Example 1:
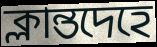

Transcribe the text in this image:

ক্লান্তদেহে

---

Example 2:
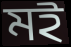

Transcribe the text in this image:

মই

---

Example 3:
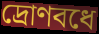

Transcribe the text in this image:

দ্রোণবধে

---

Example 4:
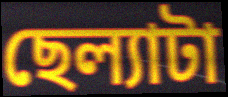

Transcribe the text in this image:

ছেল্যাটা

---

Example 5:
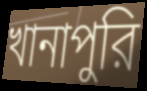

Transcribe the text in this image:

খানাপুরি